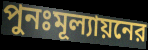
পুনঃমূল্যায়নের